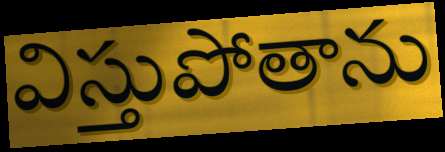
విస్తుపోతాను